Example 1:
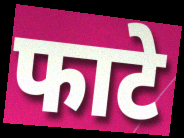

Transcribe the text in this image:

फाटे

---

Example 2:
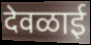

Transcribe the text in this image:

देवळाई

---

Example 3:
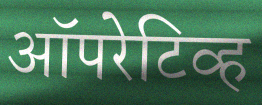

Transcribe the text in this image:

ऑपरेटिव्ह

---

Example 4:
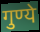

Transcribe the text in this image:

गुण्ये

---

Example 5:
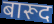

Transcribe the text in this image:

बारूद